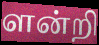
ளன்றி